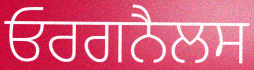
ਓਰਗਨੈਲਸ